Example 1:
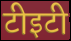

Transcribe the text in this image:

टीइटी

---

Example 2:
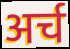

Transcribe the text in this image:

अर्च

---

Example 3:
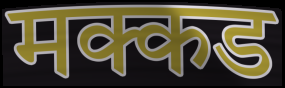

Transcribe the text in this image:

मक्कड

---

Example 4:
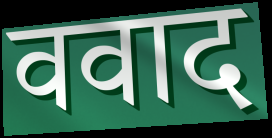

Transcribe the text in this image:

ववाद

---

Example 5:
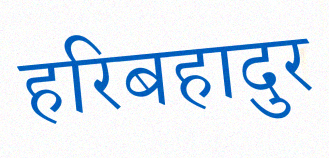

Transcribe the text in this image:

हरिबहादुर